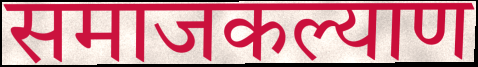
समाजकल्याण